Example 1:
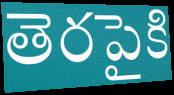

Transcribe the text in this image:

తెరపైకి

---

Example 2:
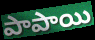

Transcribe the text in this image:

పాపాయి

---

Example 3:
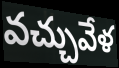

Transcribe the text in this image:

వచ్చువేళ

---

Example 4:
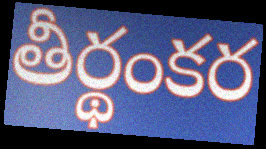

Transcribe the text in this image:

తీర్థంకర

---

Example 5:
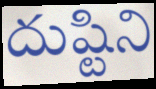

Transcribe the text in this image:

దుష్టిని